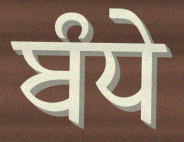
ਬੰਧੇ